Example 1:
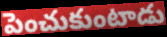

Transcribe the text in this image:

పెంచుకుంటాడు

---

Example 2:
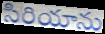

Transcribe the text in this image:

సిరియాను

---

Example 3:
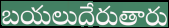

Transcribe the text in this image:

బయలుదేరుతారు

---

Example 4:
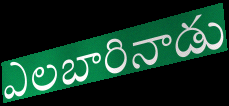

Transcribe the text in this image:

ఎలబారినాడు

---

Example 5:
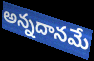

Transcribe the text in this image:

అన్నదానమే